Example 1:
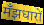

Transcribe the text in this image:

मँझधारों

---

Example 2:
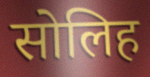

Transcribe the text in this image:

सोलिह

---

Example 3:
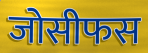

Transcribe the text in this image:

जोसीफस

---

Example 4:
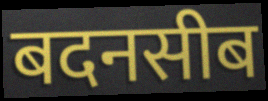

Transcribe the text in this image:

बदनसीब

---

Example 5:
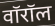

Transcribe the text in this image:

वॉरॉल